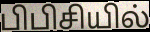
பிபிசியில்